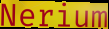
Nerium